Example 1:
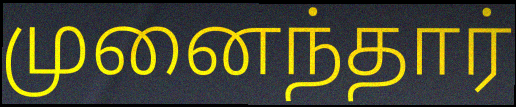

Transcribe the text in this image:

முனைந்தார்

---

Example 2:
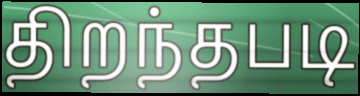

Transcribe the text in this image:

திறந்தபடி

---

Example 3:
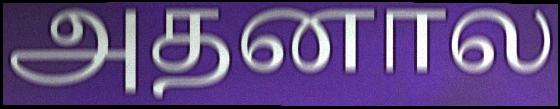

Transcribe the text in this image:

அதனால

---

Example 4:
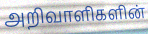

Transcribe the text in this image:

அறிவாளிகளின்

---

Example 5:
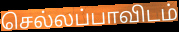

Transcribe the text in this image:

செல்லப்பாவிடம்